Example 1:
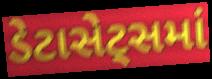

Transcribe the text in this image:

ડેટાસેટ્સમાં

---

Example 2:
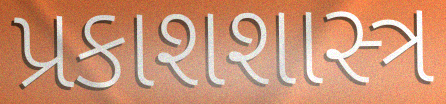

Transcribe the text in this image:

પ્રકાશશાસ્ત્ર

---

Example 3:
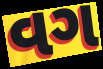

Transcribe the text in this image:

વગ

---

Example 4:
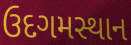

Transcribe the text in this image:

ઉદગમસ્થાન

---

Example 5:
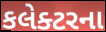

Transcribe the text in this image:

કલેક્ટરના